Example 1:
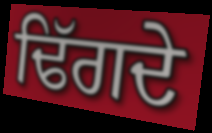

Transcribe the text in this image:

ਢਿੱਗਦੇ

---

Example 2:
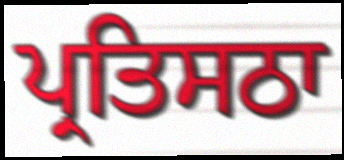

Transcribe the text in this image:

ਪ੍ਰਤਿਸਠਾ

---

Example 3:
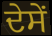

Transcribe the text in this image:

ਦੇਸੇਂ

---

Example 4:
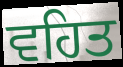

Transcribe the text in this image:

ਵਹਿਤ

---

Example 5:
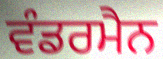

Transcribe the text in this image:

ਵੰਡਰਮੈਨ